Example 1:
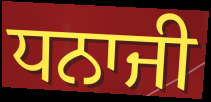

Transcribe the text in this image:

ਧਨਾਜੀ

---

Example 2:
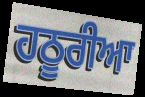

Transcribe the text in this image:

ਹਠੂਰੀਆ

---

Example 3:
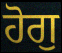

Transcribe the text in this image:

ਹੋਗੁ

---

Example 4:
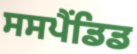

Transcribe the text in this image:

ਸਸਪੈਂਡਿਡ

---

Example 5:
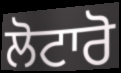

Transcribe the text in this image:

ਲੋਟਾਰੋ